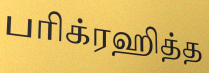
பரிக்ரஹித்த